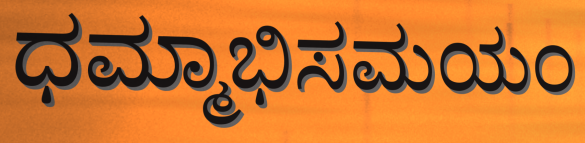
ಧಮ್ಮಾಭಿಸಮಯಂ